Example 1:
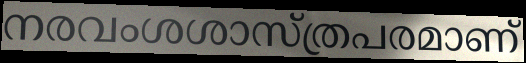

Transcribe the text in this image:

നരവംശശാസ്ത്രപരമാണ്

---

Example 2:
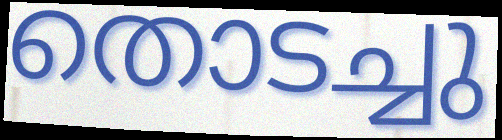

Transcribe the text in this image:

തൊടച്ചു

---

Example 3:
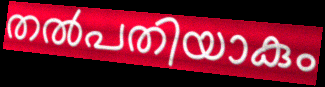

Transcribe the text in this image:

തൽപതിയാകും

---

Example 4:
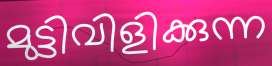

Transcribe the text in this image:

മുട്ടിവിളിക്കുന്ന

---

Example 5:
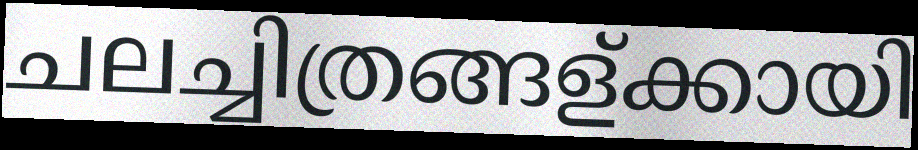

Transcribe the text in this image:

ചലച്ചിത്രങ്ങള്ക്കായി